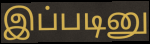
இப்படினு